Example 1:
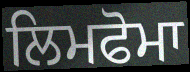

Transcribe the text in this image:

ਲਿਮਫੋਮਾ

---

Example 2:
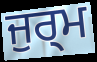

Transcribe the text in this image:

ਜੁਰ੍ਮ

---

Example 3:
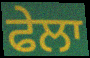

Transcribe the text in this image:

ਫੇਲਾ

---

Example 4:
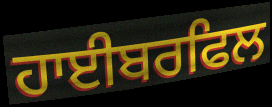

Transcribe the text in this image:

ਹਾਈਬਰਫਿਲ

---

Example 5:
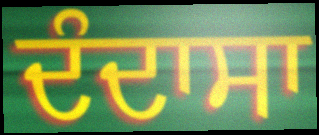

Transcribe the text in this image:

ਦੰਦਾਸਾ